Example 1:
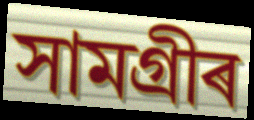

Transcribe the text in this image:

সামগ্ৰীৰ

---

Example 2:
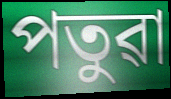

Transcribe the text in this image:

পতুৱা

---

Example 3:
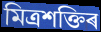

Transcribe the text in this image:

মিত্ৰশক্তিৰ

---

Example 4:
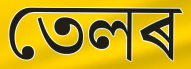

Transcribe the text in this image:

তেলৰ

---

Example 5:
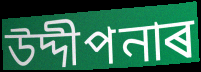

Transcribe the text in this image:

উদ্দীপনাৰ